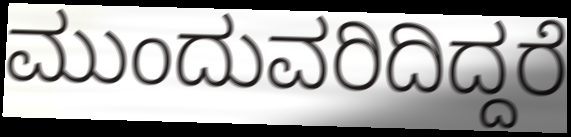
ಮುಂದುವರಿದಿದ್ದರೆ